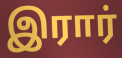
இரார்